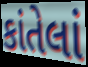
કાંતેલાં